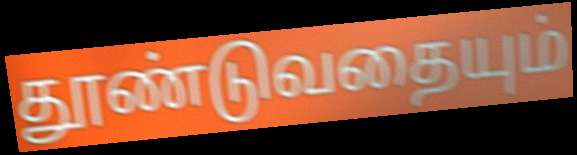
தூண்டுவதையும்